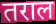
तराल